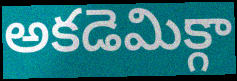
అకడెమిక్గా